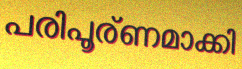
പരിപൂര്ണമാക്കി